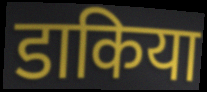
डाकिया